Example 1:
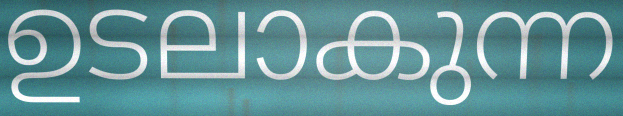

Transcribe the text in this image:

ഉടലാകുന്ന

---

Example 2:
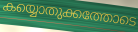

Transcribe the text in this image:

കയ്യൊതുക്കത്തോടെ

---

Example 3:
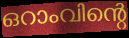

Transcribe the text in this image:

ഒറാംവിന്റെ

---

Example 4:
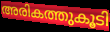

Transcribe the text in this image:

അരികത്തുകൂടി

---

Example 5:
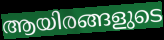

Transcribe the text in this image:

ആയിരങ്ങളുടെ